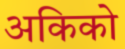
अकिको